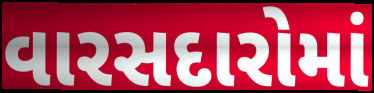
વારસદારોમાં